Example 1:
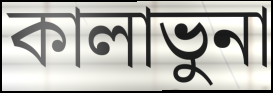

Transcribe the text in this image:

কালাভুনা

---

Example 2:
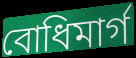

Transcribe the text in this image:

বোধিমার্গ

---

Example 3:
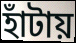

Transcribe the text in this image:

হাঁটায়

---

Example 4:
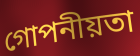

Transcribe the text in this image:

গোপনীয়তা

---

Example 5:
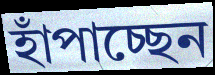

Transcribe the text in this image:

হাঁপাচ্ছেন